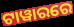
ଟାୱାରରେ